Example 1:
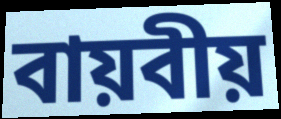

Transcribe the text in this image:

বায়বীয়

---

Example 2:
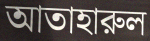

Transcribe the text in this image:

আতাহারুল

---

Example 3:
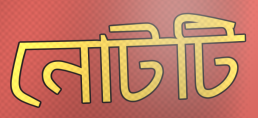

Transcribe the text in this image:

নোটটি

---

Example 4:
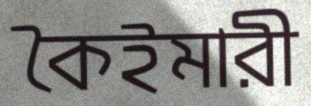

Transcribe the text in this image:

কৈইমারী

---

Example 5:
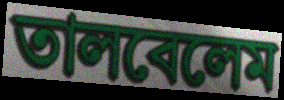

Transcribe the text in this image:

তালবেলেম